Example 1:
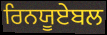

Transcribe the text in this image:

ਰਿਨਯੂਏਬਲ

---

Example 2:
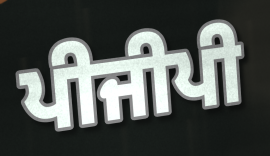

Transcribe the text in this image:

ਪੀਜੀਪੀ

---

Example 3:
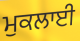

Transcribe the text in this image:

ਮੁਕਲਾਈ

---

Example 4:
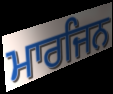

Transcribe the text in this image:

ਮਾਰਜਿਨ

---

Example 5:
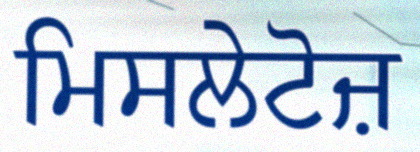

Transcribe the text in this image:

ਮਿਸਲੇਟੋਜ਼